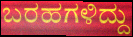
ಬರಹಗಳಿದ್ದು